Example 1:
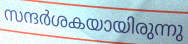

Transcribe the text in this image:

സന്ദർശകയായിരുന്നു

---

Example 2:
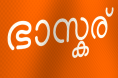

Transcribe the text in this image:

ഭാസ്കര്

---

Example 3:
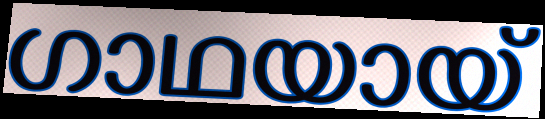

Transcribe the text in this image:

ഗാഥയായ്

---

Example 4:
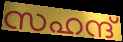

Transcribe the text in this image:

സഹന്ദ്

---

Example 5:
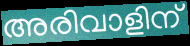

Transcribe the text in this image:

അരിവാളിന്